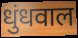
धुंधवाल